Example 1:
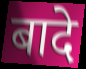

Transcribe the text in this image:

बादे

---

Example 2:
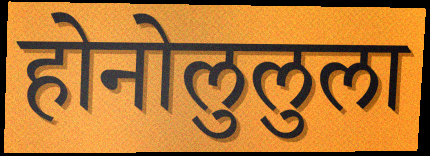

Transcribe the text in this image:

होनोलुलुला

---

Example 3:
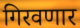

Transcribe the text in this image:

गिरवणार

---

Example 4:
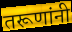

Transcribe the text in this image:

तरूणांनी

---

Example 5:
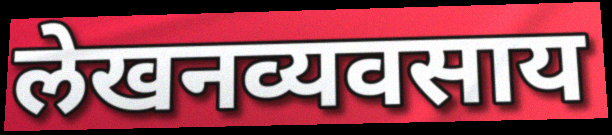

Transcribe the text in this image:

लेखनव्यवसाय